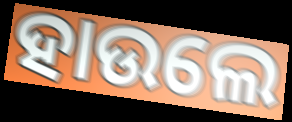
ହାଉଲେ